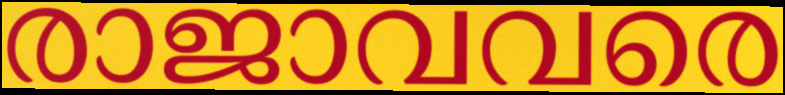
രാജാവവരെ